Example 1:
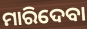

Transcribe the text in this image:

ମାରିଦେବା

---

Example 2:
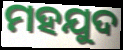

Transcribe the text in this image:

ମହଯୁଦ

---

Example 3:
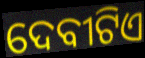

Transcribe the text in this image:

ଦେବୀଟିଏ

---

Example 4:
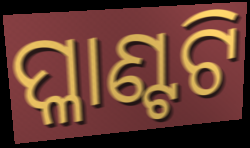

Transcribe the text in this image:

ପ୍ଳାଣ୍ଟଟି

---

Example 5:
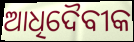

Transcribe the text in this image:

ଆଧିଦୈବୀକ